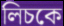
লিচকে